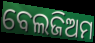
ବେଲଜିଅମ